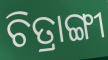
ଚିତ୍ରାଙ୍ଗୀ